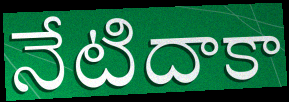
నేటిదాకా